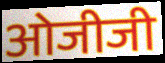
ओजीजी